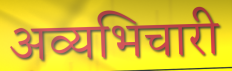
अव्यभिचारी